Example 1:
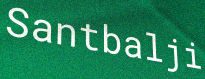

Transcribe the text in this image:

Santbalji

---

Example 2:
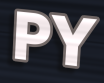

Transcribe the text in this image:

PY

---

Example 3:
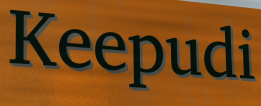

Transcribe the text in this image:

Keepudi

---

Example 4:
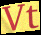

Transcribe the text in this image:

Vt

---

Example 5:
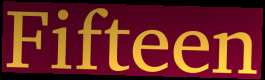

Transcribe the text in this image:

Fifteen